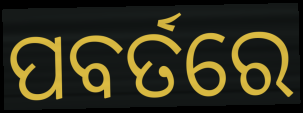
ପବର୍ତରେ